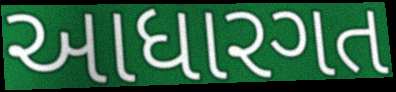
આધારગત